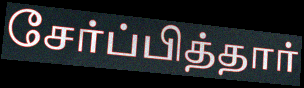
சேர்ப்பித்தார்